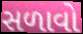
સળાવો